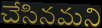
చేసినమని